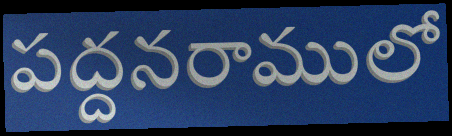
పద్దనరాములో